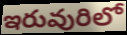
ఇరువురిలో